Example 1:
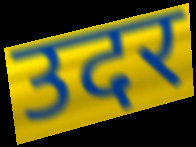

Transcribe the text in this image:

उदर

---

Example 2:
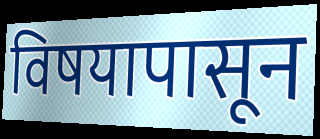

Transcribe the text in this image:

विषयापासून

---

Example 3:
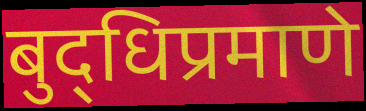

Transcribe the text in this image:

बुद्धिप्रमाणे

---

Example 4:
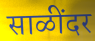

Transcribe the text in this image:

साळींदर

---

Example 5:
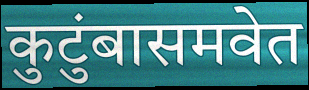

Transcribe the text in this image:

कुटुंबासमवेत